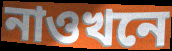
নাওখনে